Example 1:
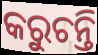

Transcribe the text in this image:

କରୁଚନ୍ତି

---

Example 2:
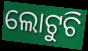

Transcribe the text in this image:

ଲୋଟୁଚି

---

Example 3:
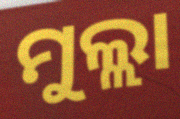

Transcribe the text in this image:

ମୁଲ୍ଲା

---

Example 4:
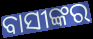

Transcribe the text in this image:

ବାସୀଙ୍କର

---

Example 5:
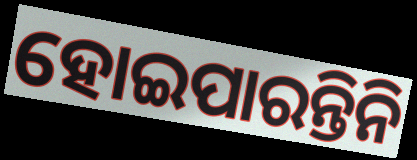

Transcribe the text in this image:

ହୋଇପାରନ୍ତିନି